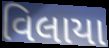
વિલાયા